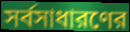
সর্বসাধারণের